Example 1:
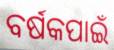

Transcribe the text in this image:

ବର୍ଷକପାଇଁ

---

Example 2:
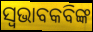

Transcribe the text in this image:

ସ୍ଵଭାବକବିଙ୍କ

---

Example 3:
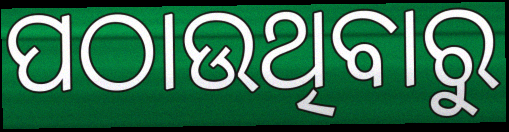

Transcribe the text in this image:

ପଠାଉଥିବାରୁ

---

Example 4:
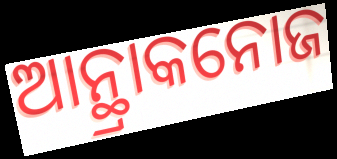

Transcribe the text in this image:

ଆନ୍ଥ୍ରାକନୋଜ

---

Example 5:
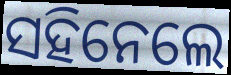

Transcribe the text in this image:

ସହିନେଲେ